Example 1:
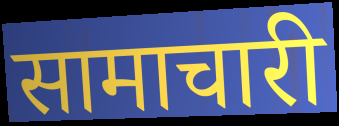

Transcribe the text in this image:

सामाचारी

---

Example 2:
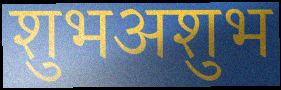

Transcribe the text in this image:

शुभअशुभ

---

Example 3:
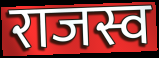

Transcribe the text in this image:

राजस्व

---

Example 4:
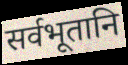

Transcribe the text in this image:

सर्वभूतानि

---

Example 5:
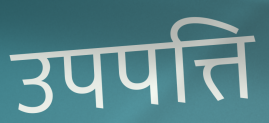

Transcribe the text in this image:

उपपत्ति